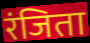
रंजिता